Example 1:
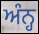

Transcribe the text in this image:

ਅੰਨ੍ਹ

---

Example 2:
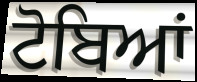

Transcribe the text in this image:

ਟੋਬਿਆਂ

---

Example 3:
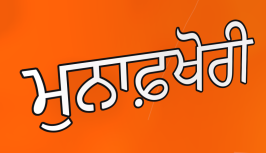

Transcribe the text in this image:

ਮੁਨਾਫ਼ਖੋਰੀ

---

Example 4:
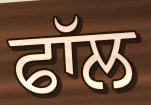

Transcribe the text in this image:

ਫਾੱਲ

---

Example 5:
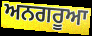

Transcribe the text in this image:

ਅਨਗਰੂਆ